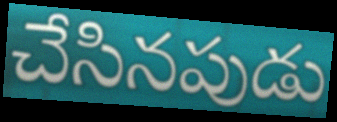
చేసినపుడు